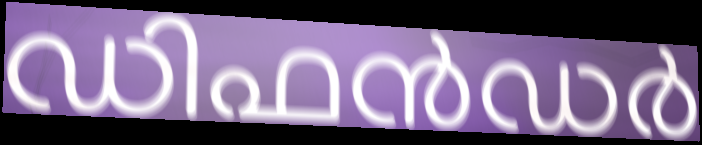
ഡിഫൻഡർ